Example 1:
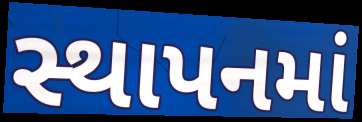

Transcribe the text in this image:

સ્થાપનમાં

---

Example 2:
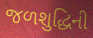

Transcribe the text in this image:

જળશુદ્ધિની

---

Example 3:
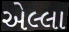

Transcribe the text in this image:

એલ્લા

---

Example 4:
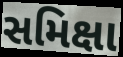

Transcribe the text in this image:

સમિક્ષા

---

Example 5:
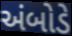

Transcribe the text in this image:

અંબોડે